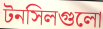
টনসিলগুলো